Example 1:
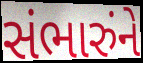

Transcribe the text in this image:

સંભારુંને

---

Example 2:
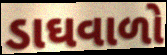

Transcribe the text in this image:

ડાઘવાળો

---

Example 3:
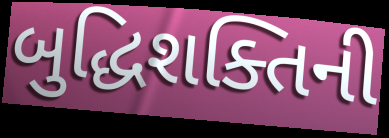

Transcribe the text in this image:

બુદ્ધિશક્તિની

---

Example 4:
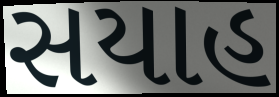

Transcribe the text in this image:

સયાહ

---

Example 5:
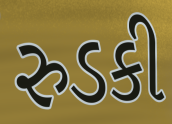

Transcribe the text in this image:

રુડકી